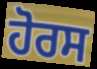
ਹੋਰਸ